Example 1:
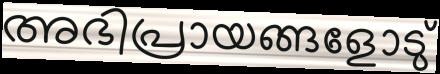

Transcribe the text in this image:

അഭിപ്രായങ്ങളോടു്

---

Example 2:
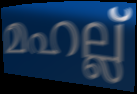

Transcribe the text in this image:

മഹല്ല്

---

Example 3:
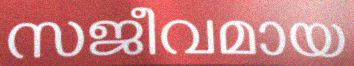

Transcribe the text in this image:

സജീവമായ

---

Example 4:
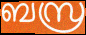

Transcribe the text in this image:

ബസ്ര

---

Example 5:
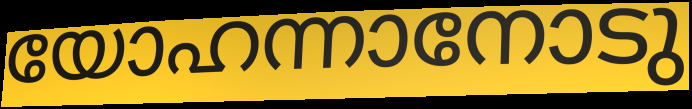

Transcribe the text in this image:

യോഹന്നാനോടു